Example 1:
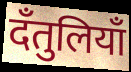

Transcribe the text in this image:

दँतुलियाँ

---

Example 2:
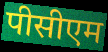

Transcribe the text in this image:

पीसीएम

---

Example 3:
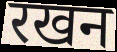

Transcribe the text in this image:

रखन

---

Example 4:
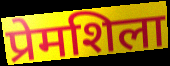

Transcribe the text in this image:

प्रेमशिला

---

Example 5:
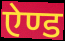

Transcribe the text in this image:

ऐण्ड